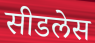
सीडलेस